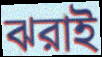
ঝরাই